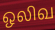
ஒலிவ